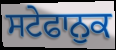
ਸਟੇਫਾਨੁਕ